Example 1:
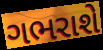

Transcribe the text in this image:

ગભરાશે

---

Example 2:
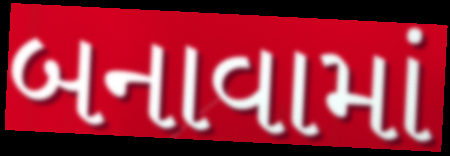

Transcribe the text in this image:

બનાવામાં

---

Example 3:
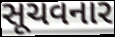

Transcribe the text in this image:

સૂચવનાર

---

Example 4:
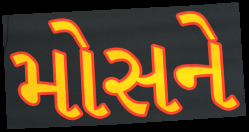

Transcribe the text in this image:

મોસને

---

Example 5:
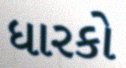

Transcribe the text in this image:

ધારકો